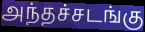
அந்தச்சடங்கு